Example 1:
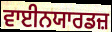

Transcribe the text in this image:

ਵਾਈਨਯਾਰਡਜ਼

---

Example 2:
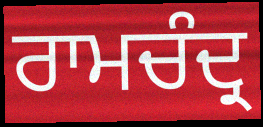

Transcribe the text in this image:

ਰਾਮਚੰਦ੍ਰ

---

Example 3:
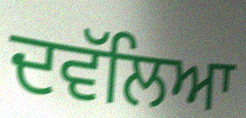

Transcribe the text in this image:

ਦਵੱਲਿਆ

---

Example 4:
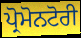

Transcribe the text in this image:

ਪ੍ਰੋਮੋਨਟੋਰੀ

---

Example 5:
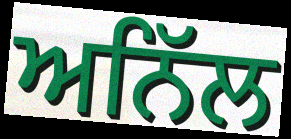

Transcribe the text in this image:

ਅਨਿੱਲ